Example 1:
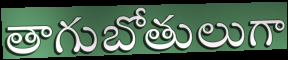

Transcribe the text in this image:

తాగుబోతులుగా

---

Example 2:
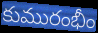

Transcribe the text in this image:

కుమురంభీం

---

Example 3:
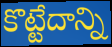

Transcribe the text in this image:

కొట్టేదాన్ని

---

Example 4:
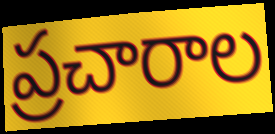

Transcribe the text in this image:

ప్రచారాల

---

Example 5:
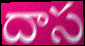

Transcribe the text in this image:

దాస